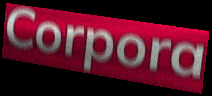
Corpora